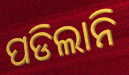
ପଡିଲାନି